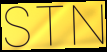
STN